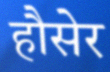
हौसेर